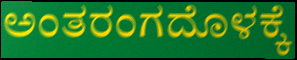
ಅಂತರಂಗದೊಳಕ್ಕೆ